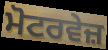
ਮੋਟਰਵੇਜ਼